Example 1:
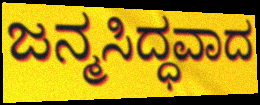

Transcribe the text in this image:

ಜನ್ಮಸಿದ್ಧವಾದ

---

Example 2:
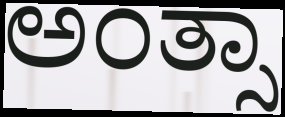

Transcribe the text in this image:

ಅಂತ್ಸಾ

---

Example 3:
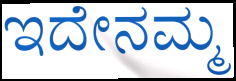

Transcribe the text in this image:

ಇದೇನಮ್ಮ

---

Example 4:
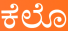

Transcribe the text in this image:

ಕೆಲೊ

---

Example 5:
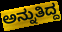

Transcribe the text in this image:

ಅನ್ನುತಿದ್ದ